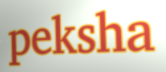
peksha